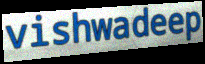
vishwadeep